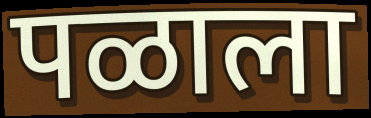
पळाला